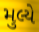
મુલ્યે